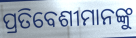
ପ୍ରତିବେଶୀମାନଙ୍କୁ